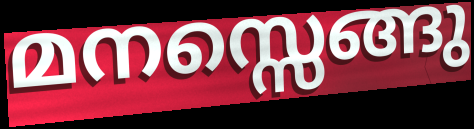
മനസ്സെങ്ങു